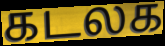
கடலக